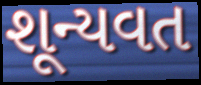
શૂન્યવત